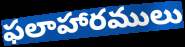
ఫలాహారములు